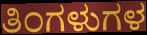
ತಿಂಗಳುಗಳ